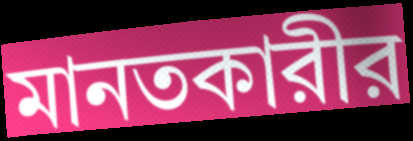
মানতকারীর